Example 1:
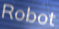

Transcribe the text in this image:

Robot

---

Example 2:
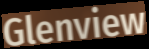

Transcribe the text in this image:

Glenview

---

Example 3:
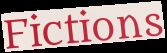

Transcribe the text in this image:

Fictions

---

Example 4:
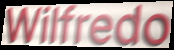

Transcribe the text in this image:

Wilfredo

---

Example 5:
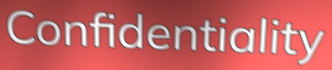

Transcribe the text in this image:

Confidentiality